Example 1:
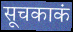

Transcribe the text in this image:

सूचकाकं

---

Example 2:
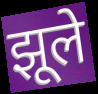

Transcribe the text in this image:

झूले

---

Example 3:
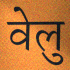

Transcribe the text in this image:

वेलु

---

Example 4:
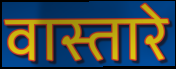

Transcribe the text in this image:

वास्तारे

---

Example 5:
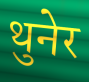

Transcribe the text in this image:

थुनेर